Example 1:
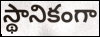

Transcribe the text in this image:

స్థానికంగా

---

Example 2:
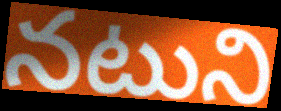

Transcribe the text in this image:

నటుని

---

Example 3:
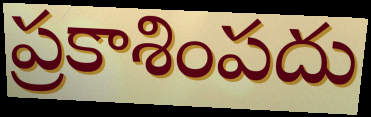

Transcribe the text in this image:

ప్రకాశింపదు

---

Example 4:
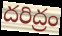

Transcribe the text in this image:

దరిద్రం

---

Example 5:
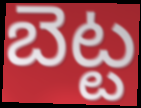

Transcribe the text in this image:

బెట్ట